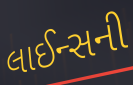
લાઈન્સની